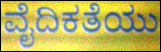
ವೈದಿಕತೆಯು